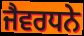
ਜੈਵਰਧਨੇ